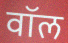
वॉल